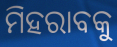
ମିହରାବକୁ